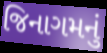
જિનાગમનું